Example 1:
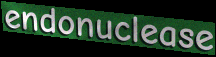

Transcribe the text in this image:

endonuclease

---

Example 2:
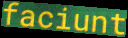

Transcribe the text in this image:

faciunt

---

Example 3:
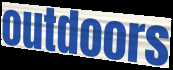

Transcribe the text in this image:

outdoors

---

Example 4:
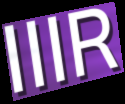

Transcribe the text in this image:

IIIR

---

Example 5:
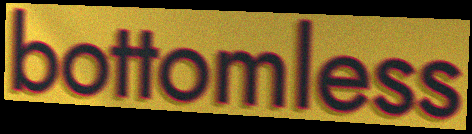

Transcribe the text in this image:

bottomless